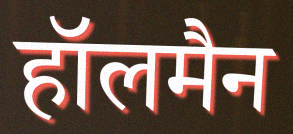
हॉलमैन